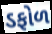
ડફોળ